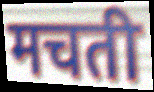
मचती